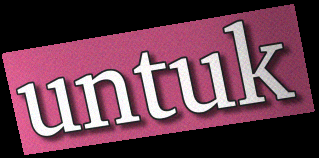
untuk